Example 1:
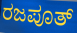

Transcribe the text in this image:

ರಜಪೂತ್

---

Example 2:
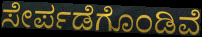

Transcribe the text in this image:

ಸೇರ್ಪಡೆಗೊಂಡಿವೆ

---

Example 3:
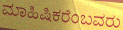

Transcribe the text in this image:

ಮಾಹಿಷಿಕರೆಂಬವರು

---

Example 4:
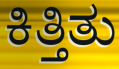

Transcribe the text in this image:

ಕಿತ್ತಿತು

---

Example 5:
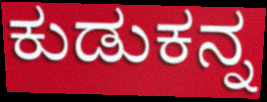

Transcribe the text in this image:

ಕುಡುಕನ್ನ